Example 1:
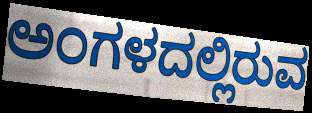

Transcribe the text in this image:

ಅಂಗಳದಲ್ಲಿರುವ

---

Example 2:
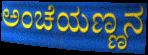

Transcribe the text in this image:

ಅಂಚೆಯಣ್ಣನ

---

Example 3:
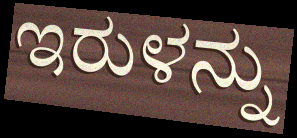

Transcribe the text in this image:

ಇರುಳನ್ನು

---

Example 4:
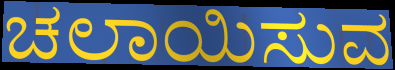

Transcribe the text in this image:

ಚಲಾಯಿಸುವ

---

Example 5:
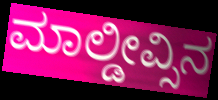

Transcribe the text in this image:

ಮಾಲ್ಡೀವ್ಸಿನ